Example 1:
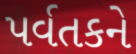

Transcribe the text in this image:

પર્વતકને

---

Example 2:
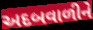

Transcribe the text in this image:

અદબવાળીને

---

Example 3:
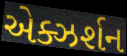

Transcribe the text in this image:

એક્ઝર્શન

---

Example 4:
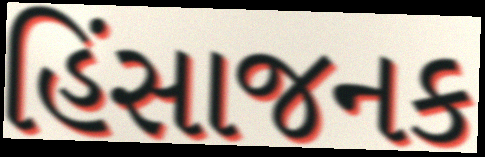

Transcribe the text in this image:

હિંસાજનક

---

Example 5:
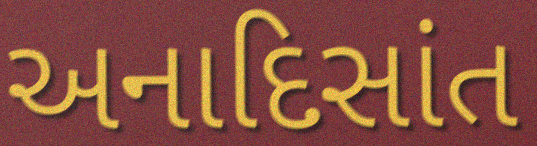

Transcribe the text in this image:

અનાદિસાંત